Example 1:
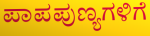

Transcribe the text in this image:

ಪಾಪಪುಣ್ಯಗಳಿಗೆ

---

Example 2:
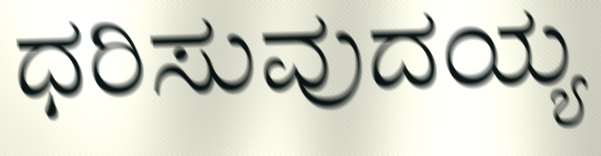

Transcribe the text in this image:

ಧರಿಸುವುದಯ್ಯ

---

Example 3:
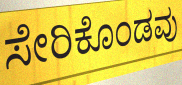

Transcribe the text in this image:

ಸೇರಿಕೊಂಡವು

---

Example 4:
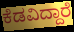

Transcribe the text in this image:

ಕೆಡವಿದ್ದಾರೆ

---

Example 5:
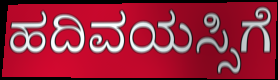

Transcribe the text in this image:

ಹದಿವಯಸ್ಸಿಗೆ